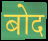
बोद